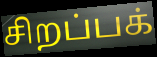
சிறப்பக்